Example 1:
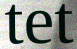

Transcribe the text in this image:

tet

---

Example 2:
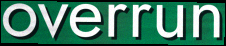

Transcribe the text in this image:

overrun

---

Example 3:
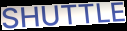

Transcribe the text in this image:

SHUTTLE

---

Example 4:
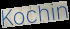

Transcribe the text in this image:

Kochin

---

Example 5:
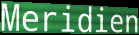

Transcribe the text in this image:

Meridien